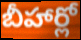
బీహార్లో